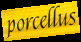
porcellus